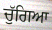
ਚੁੱਗਿਆ